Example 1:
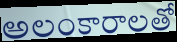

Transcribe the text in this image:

అలంకారాలతో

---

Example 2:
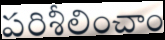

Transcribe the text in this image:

పరిశీలించాం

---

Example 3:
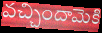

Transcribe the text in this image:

వచ్చిందామెకి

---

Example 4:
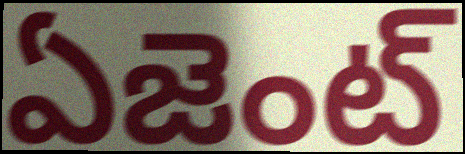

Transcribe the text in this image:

ఏజెంట్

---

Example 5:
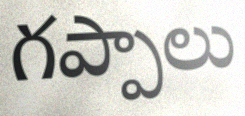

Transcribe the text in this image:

గప్పాలు